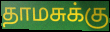
தாமசுக்கு